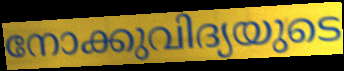
നോക്കുവിദ്യയുടെ